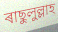
ৰাছুলুল্লাহ